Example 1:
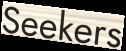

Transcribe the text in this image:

Seekers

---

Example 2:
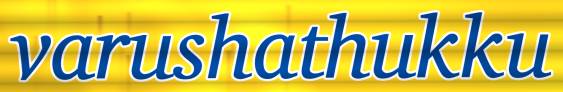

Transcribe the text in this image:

varushathukku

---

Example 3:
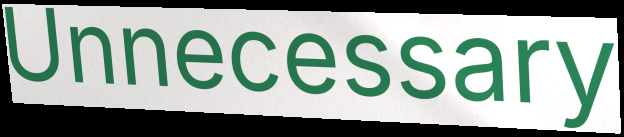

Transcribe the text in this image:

Unnecessary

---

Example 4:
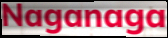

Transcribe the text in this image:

Naganaga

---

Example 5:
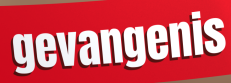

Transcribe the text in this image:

gevangenis